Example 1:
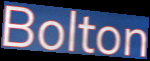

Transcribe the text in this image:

Bolton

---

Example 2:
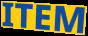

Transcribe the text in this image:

ITEM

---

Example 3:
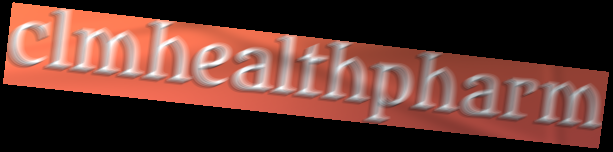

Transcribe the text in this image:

clmhealthpharm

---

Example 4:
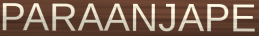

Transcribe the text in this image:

PARAANJAPE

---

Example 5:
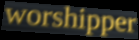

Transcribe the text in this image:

worshipper